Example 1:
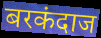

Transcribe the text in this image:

बरकंदाज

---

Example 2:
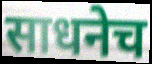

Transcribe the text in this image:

साधनेच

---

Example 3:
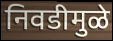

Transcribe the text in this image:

निवडीमुळे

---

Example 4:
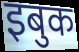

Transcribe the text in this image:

इबुक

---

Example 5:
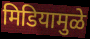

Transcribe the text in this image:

मिडियामुळे